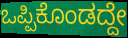
ಒಪ್ಪಿಕೊಂಡದ್ದೇ